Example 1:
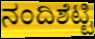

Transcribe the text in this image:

ನಂದಿಶೆಟ್ಟಿ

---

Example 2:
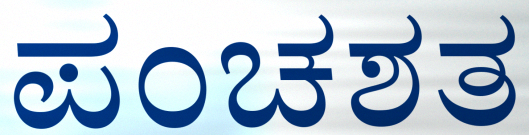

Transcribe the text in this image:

ಪಂಚಶತ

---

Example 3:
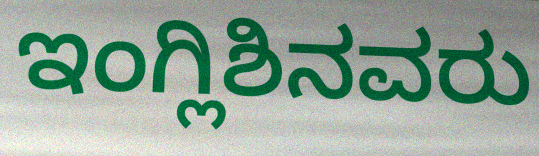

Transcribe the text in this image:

ಇಂಗ್ಲಿಶಿನವರು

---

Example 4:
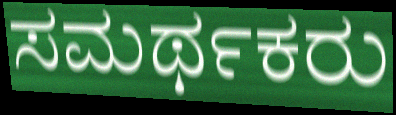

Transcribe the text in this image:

ಸಮರ್ಥಕರು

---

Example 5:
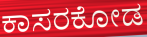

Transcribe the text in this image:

ಕಾಸರಕೋಡ